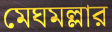
মেঘমল্লার